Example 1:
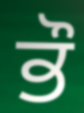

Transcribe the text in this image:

ਭੌ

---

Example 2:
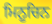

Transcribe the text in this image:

ਮਿਨੂਚਿਨ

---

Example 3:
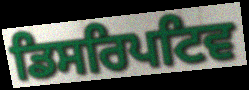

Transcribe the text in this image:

ਡਿਸਰਿਪਟਿਵ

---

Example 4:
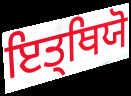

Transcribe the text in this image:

ਇਤ੍ਥਿਯੋ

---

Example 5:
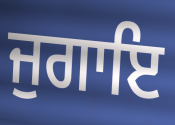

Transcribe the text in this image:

ਜੁਗਾਇ